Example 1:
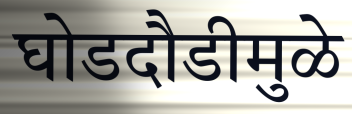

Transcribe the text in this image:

घोडदौडीमुळे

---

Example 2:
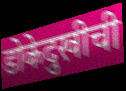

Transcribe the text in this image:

डोकेदुखीची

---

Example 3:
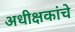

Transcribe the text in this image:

अधीक्षकांचे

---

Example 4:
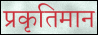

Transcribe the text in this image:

प्रकृतिमान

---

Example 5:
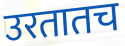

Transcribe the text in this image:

उरतातच